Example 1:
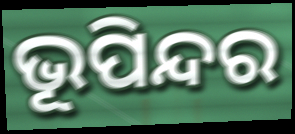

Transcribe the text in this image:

ଭୂପିନ୍ଦର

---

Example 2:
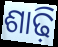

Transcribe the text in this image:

ଶାଢ଼ି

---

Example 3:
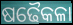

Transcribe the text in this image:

ଷଢୈକଳା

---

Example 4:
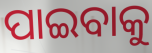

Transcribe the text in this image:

ପାଇବାକୁ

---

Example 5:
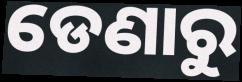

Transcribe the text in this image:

ଡେଣାରୁ